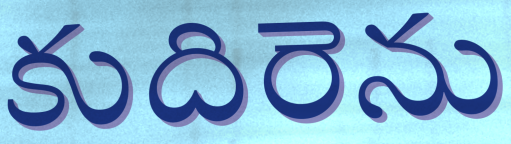
కుదిరెను